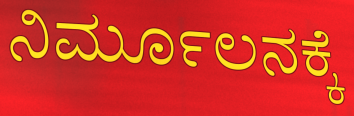
ನಿರ್ಮೂಲನಕ್ಕೆ